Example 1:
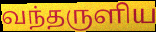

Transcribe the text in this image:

வந்தருளிய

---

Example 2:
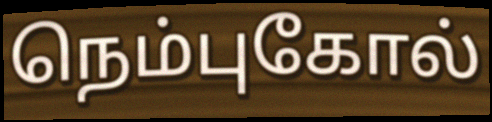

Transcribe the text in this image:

நெம்புகோல்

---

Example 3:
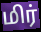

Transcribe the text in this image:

மிர்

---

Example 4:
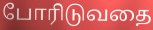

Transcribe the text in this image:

போரிடுவதை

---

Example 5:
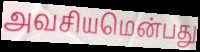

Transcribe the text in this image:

அவசியமென்பது